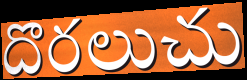
దొరలుచు